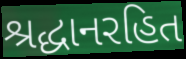
શ્રદ્ધાનરહિત